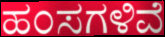
ಹಂಸಗಳಿವೆ